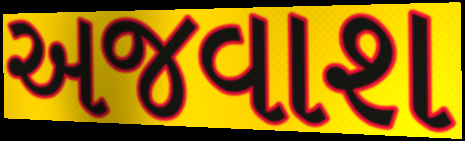
અજવાશ